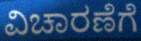
ವಿಚಾರಣೆಗೆ